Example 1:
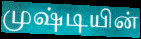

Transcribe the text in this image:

முஷ்டியின்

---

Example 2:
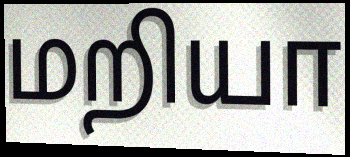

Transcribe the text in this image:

மறியா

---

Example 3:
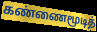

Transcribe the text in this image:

கண்ணைமூடித்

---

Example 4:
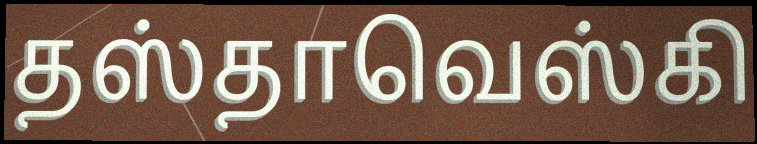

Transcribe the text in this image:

தஸ்தாவெஸ்கி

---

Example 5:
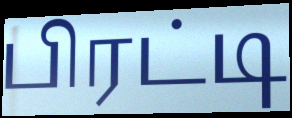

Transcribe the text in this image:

பிரட்டி